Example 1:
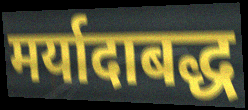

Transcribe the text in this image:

मर्यादाबद्ध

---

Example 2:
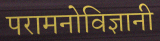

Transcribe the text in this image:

परामनोविज्ञानी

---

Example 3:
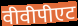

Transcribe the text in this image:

वीवीपीएट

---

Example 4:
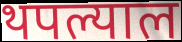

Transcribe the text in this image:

थपल्याल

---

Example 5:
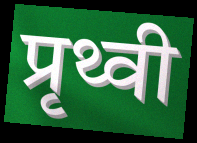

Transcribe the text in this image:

प्रृथ्वी